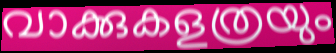
വാക്കുകളത്രയും